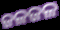
ଜଳଜଳ